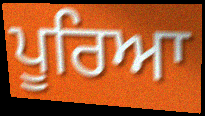
ਪੂਰਿਆ